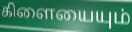
கிளையையும்